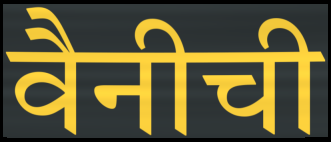
वैनीची